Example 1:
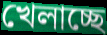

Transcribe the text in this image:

খেলাচ্ছে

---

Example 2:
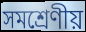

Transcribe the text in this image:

সমশ্রেণীয়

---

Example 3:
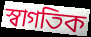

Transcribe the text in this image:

স্বাগতিক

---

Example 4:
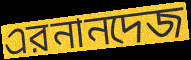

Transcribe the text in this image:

এরনানদেজ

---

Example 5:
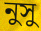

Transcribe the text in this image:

নুসু